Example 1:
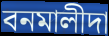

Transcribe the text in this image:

বনমালীদা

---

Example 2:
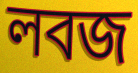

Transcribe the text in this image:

লবজ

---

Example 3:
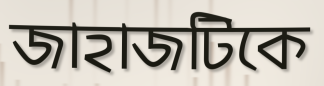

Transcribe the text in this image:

জাহাজটিকে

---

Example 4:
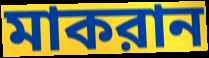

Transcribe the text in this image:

মাকরান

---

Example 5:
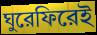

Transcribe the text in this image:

ঘুরেফিরেই